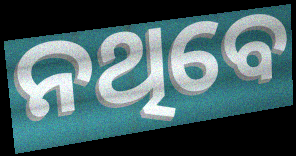
ନଥିବେ